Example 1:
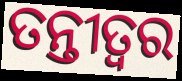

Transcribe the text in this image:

ତନ୍ତୀତ୍ୱର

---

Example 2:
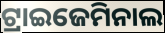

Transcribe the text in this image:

ଟ୍ରାଇଜେମିନାଲ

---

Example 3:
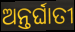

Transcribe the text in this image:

ଅନ୍ତର୍ଘାତୀ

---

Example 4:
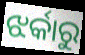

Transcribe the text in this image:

ଝର୍କାରୁ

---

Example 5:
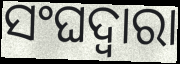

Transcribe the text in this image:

ସଂଘଦ୍ୱାରା